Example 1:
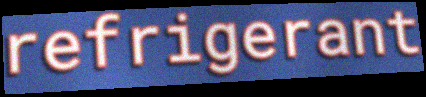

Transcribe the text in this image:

refrigerant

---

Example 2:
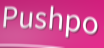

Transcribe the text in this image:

Pushpo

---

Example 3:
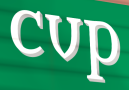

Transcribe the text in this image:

cup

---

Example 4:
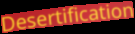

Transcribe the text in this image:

Desertification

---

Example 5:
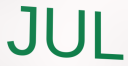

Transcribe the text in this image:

JUL